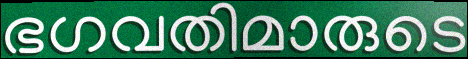
ഭഗവതിമാരുടെ